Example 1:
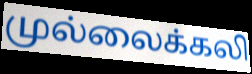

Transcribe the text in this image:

முல்லைக்கலி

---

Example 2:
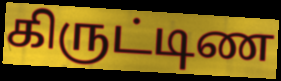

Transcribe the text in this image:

கிருட்டிண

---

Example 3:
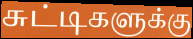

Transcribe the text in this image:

சுட்டிகளுக்கு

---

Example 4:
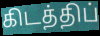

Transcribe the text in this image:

கிடத்திப்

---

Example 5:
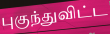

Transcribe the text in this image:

புகுந்துவிட்ட